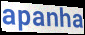
apanha